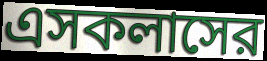
এসকলাসের